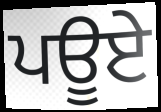
ਪਊਏ